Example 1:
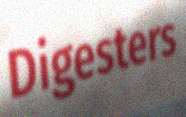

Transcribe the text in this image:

Digesters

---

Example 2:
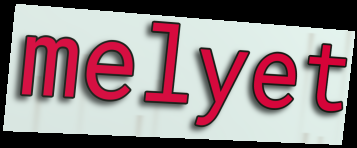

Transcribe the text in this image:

melyet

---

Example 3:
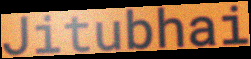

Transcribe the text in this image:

Jitubhai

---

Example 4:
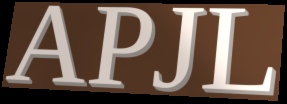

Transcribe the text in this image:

APJL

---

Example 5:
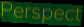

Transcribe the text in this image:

Perspect